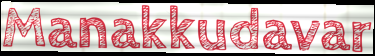
Manakkudavar